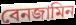
বেনজামিন